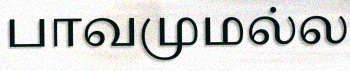
பாவமுமல்ல